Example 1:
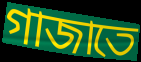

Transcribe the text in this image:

গাজাতে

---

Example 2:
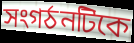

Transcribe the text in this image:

সংগঠনটিকে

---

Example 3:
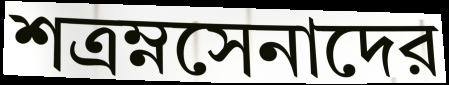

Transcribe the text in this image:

শত্রম্নসেনাদের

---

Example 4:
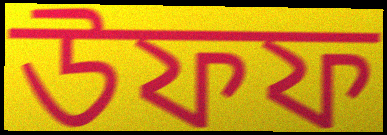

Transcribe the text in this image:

উফফ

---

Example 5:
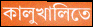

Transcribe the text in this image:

কালুখালিতে